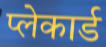
प्लेकार्ड